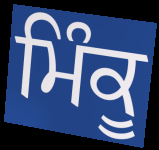
ਮਿੰਕੂ